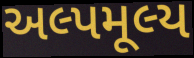
અલ્પમૂલ્ય